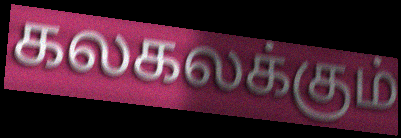
கலகலக்கும்